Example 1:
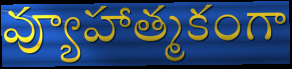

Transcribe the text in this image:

వ్యూహాత్మకంగా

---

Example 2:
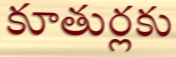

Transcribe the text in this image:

కూతుర్లకు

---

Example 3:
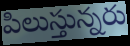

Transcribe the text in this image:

పిలుస్తున్నరు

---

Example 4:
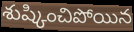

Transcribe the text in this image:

శుష్కించిపోయిన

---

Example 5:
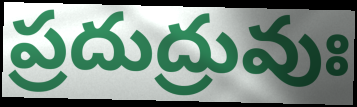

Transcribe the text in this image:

ప్రదుద్రువుః